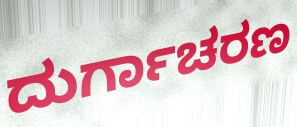
ದುರ್ಗಾಚರಣ